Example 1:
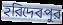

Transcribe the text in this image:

হরিদেবপুর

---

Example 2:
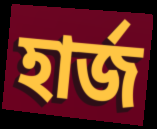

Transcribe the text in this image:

হার্জ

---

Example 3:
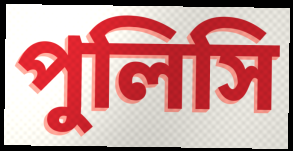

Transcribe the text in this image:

পুলিসি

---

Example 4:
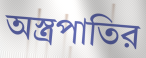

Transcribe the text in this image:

অস্ত্রপাতির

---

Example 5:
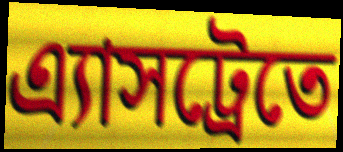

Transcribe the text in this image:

এ্যাসট্রেতে